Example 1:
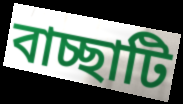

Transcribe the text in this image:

বাচ্ছাটি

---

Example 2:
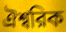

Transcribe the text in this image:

ঐশ্বরিক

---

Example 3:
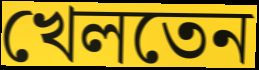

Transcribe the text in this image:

খেলতেন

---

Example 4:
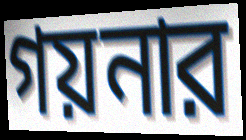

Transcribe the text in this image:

গয়নার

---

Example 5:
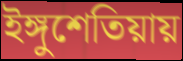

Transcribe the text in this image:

ইঙ্গুশেতিয়ায়